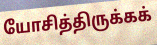
யோசித்திருக்கக்